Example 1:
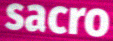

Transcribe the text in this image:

sacro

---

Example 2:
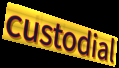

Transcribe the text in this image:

custodial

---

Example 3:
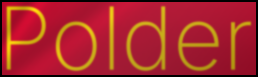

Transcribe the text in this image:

Polder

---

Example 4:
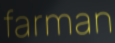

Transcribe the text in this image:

farman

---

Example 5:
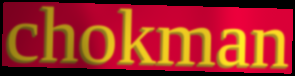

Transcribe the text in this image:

chokman